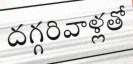
దగ్గరివాళ్లతో